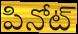
పినోట్